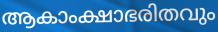
ആകാംക്ഷാഭരിതവും